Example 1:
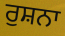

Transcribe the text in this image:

ਰੁਸ਼ਨਾ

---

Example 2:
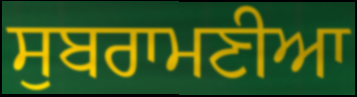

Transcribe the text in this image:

ਸੁਬਰਾਮਣੀਆ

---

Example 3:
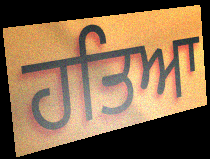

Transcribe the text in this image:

ਹਤਿਆ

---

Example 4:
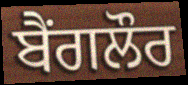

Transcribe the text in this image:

ਬੈਂਗਲੌਰ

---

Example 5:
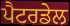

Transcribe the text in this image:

ਪੈਟਰਡੇਲ